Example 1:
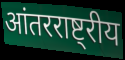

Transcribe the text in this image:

आंतरराष्ट्रीय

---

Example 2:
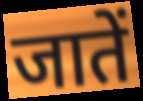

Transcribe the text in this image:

जातें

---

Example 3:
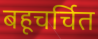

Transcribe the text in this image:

बहूचर्चित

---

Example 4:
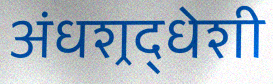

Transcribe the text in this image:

अंधश्रद्धेशी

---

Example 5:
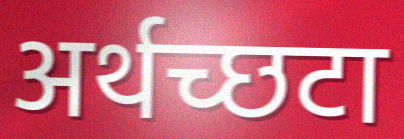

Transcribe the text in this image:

अर्थच्छटा